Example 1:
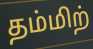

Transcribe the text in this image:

தம்மிற்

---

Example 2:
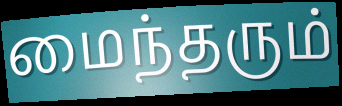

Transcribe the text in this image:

மைந்தரும்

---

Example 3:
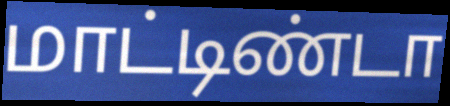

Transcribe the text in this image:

மாட்டிண்டா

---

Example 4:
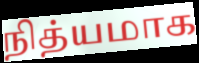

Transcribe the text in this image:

நித்யமாக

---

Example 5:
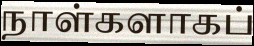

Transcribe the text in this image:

நாள்களாகப்